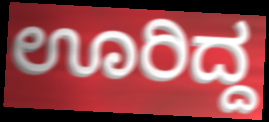
ಊರಿದ್ದ